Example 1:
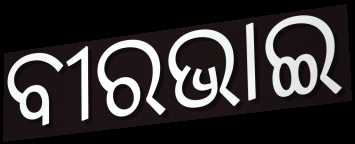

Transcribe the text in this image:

ବୀରଭାଇ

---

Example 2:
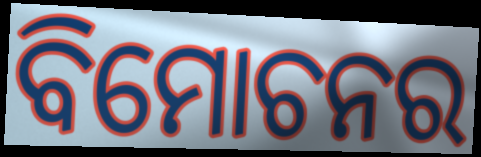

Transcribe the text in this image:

ବିମୋଚନର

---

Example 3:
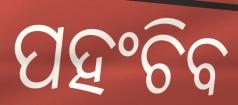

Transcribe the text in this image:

ପହଂଚିବ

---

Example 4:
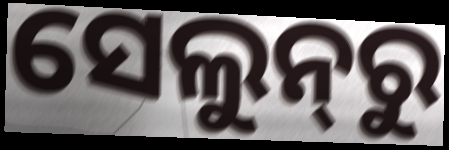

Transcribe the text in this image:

ସେଲୁନ୍‌ରୁ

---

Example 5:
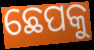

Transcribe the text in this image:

ଛେପକୁ